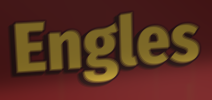
Engles